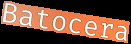
Batocera